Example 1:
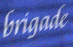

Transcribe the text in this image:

brigade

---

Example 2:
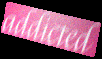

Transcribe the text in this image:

addicted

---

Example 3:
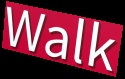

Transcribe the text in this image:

Walk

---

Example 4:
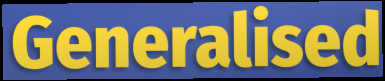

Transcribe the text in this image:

Generalised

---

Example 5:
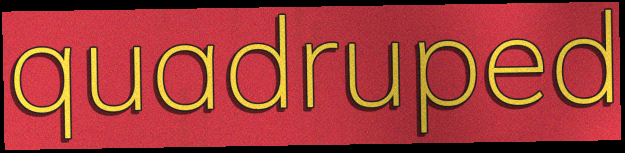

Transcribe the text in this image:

quadruped